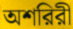
অশরিরী